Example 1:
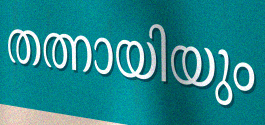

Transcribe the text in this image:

തത്നായിയും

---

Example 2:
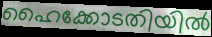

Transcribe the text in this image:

ഹൈക്കോടതിയിൽ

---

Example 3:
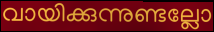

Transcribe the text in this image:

വായിക്കുന്നുണ്ടല്ലോ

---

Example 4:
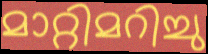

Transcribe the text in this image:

മാറ്റിമറിച്ചു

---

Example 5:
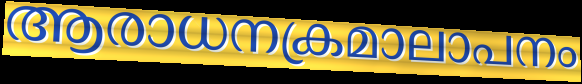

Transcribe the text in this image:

ആരാധനക്രമാലാപനം